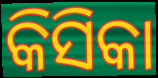
କିସିକା